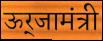
ऊर्जामंत्री